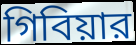
গিবিয়ার